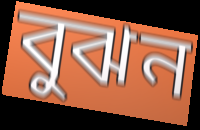
বুঝন